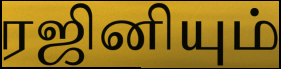
ரஜினியும்